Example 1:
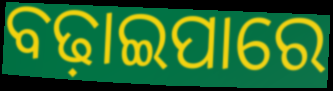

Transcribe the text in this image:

ବଢ଼ାଇପାରେ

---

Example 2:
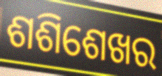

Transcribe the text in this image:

ଶଶିଶେଖର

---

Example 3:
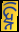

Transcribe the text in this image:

ହ୍ନି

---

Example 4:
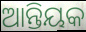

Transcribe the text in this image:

ଆନ୍ତିୟକ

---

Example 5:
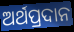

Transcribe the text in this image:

ଅର୍ଥପ୍ରଦାନ